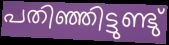
പതിഞ്ഞിട്ടുണ്ടു്